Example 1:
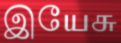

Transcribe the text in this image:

இயேசு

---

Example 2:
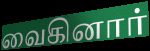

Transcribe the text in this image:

வைகினார்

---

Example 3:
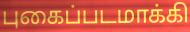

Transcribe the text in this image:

புகைப்படமாக்கி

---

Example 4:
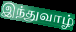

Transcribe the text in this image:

இந்துவாழ்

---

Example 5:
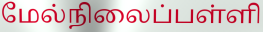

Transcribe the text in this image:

மேல்நிலைப்பள்ளி